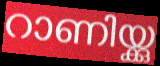
റാണിയ്ക്കു